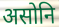
असोनि